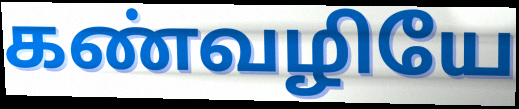
கண்வழியே